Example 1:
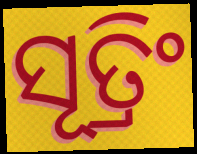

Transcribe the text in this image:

ସୂତ୍ରିଂ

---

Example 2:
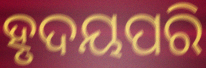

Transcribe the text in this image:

ହୃଦୟପରି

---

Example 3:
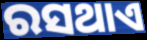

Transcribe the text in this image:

ରସଥାଏ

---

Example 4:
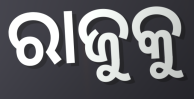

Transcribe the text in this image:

ରାଜୁକୁ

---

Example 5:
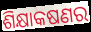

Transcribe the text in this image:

ଶିକ୍ଷାକଷଣର